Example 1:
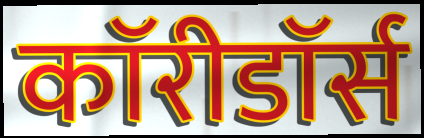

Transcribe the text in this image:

कॉरीडॉर्स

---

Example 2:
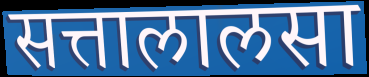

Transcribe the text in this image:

सत्तालालसा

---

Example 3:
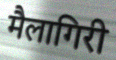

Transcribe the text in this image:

मैलागिरी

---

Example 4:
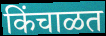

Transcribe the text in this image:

किंचाळत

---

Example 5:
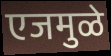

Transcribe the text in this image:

एजमुळे